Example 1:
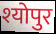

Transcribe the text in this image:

श्‍योपुर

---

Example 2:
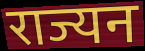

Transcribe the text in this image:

राज्यन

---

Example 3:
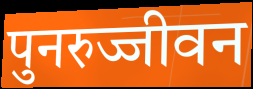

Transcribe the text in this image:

पुनरुज्जीवन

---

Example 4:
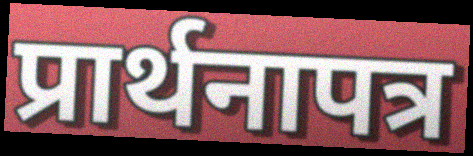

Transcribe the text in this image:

प्रार्थनापत्र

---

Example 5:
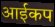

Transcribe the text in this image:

आईकप